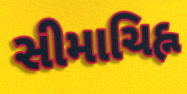
સીમાચિહ્ન